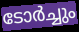
ടോർച്ചും